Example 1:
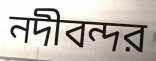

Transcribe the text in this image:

নদীবন্দর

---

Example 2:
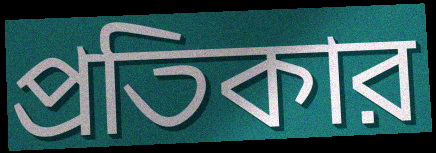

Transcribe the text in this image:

প্রতিকার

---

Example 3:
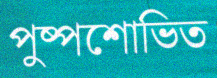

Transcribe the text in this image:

পুষ্পশোভিত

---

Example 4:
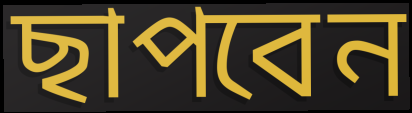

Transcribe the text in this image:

ছাপবেন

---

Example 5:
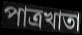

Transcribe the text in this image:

পাত্রখাতা